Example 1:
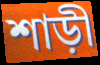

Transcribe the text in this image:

শাড়ী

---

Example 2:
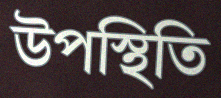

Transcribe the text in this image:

উপস্থিতি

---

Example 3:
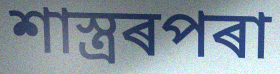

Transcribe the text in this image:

শাস্ত্ৰৰপৰা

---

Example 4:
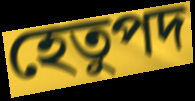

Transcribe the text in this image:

হেতুপদ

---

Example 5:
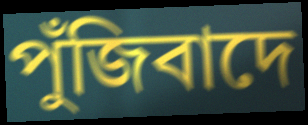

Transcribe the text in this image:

পুঁজিবাদে